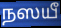
நஸயீ